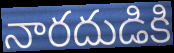
నారదుడికి